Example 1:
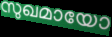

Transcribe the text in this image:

സുഖമായോ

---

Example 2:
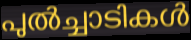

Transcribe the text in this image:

പുൽച്ചാടികൾ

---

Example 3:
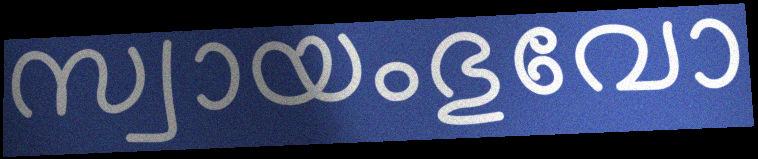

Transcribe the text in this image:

സ്വായംഭുവോ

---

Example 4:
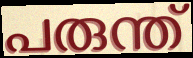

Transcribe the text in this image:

പരുന്ത്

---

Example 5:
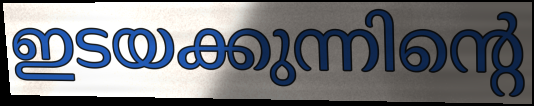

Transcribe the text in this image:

ഇടയക്കുന്നിന്റെ